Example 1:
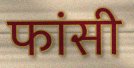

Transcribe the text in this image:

फांसी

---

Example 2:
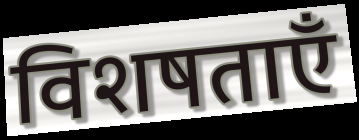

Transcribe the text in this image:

विशषताएँ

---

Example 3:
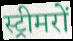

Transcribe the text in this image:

स्ट्रीमरों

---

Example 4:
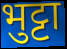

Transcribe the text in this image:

भुट्टा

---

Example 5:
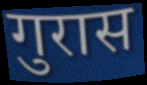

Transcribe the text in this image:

गुरास